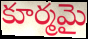
కూర్మమై